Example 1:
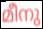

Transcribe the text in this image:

മീനു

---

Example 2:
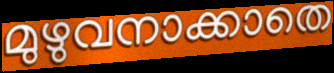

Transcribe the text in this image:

മുഴുവനാക്കാതെ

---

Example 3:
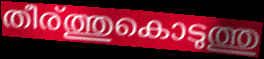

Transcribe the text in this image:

തീര്ത്തുകൊടുത്തു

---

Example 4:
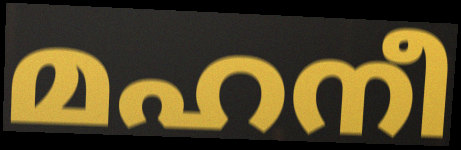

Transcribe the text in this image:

മഹനീ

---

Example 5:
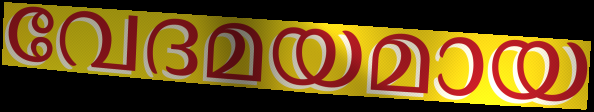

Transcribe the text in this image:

വേദമയമായ